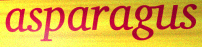
asparagus